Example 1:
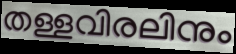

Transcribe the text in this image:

തള്ളവിരലിനും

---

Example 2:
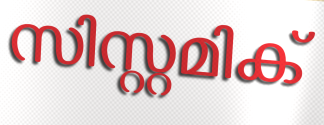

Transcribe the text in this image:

സിസ്റ്റമിക്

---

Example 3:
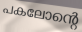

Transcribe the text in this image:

പകലോന്റെ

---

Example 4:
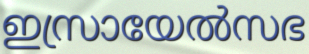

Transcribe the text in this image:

ഇസ്രായേൽസഭ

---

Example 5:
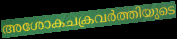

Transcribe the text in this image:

അശോകചക്രവർത്തിയുടെ